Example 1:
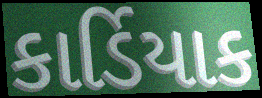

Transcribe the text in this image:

કાર્ડિયાક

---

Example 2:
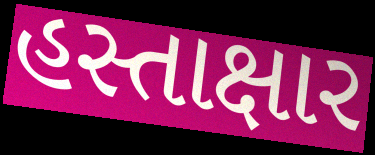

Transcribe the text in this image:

હસ્તાક્ષાર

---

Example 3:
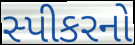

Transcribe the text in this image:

સ્પીકરનો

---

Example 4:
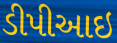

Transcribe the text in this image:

ડીપીઆઇ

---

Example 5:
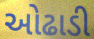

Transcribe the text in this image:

ઓઢાડી